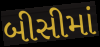
બીસીમાં